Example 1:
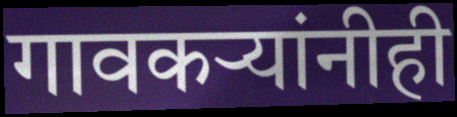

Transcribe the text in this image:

गावकऱ्यांनीही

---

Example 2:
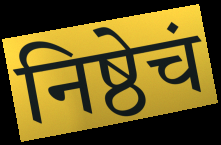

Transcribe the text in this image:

निष्ठेचं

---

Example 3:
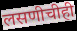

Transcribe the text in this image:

लसणीचीही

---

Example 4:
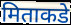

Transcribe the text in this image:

मिताकडे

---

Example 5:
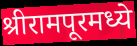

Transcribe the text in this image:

श्रीरामपूरमध्ये